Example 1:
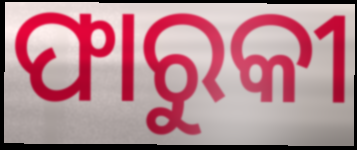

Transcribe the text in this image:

ଫାରୁକୀ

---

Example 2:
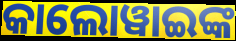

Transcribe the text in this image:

କାଲୋୱାଇଙ୍କ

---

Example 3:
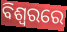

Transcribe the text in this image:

ବିଶ୍ବରରେ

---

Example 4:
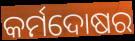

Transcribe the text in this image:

କର୍ମଦୋଷର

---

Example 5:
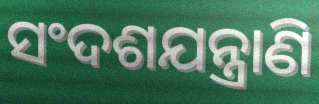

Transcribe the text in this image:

ସଂଦଶଯନ୍ତ୍ରାଣି